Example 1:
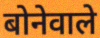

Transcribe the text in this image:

बोनेवाले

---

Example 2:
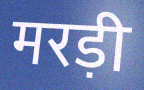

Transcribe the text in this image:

मरड़ी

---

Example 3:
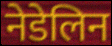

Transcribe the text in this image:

नेडेलिन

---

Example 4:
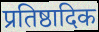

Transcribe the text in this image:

प्रतिष्ठादिक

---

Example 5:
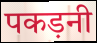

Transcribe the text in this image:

पकड़नी